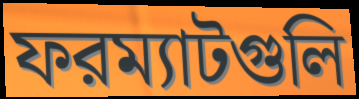
ফরম্যাটগুলি